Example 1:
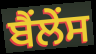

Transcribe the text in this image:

ਬੈਂਲੇਂਸ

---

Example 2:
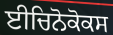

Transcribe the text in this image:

ਈਚਿਨੋਕੋਕਸ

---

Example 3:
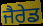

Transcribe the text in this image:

ਜੈਰੇਡ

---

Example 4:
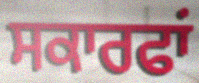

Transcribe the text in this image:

ਸਕਾਰਫਾਂ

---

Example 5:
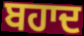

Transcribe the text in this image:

ਬਹਾਦ